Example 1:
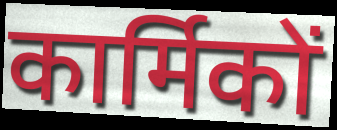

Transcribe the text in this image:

कार्मिकों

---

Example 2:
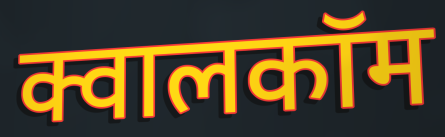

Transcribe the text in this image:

क्वालकॉम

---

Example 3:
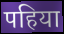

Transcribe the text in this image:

पहिया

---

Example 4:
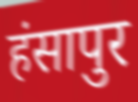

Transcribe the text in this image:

हंसापुर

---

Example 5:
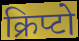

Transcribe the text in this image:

क्रिप्टो